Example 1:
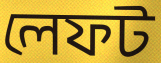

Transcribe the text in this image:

লেফট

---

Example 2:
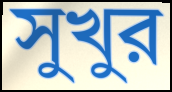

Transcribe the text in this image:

সুখুর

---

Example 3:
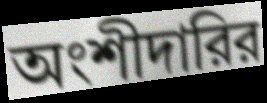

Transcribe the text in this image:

অংশীদারির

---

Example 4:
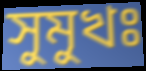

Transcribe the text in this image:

সুমুখঃ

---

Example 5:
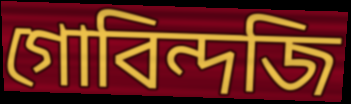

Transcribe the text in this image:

গোবিন্দজি